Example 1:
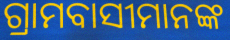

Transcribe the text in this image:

ଗ୍ରାମବାସୀମାନଙ୍କ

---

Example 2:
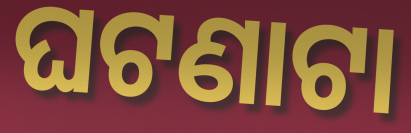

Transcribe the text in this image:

ଘଟଣାଟା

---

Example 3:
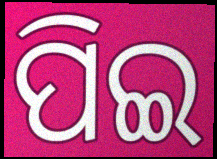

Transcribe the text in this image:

ପିଇ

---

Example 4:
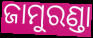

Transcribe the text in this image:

ଜାମୁରଣ୍ଡା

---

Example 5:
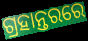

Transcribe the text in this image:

ଗ୍ରହାନ୍ତରରେ